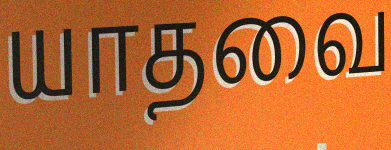
யாதவை